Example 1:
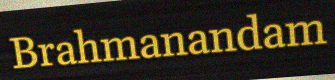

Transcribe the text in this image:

Brahmanandam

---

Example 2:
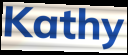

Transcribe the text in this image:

Kathy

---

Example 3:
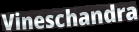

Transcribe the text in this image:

Vineschandra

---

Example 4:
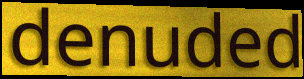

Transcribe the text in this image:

denuded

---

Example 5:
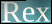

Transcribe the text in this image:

Rex